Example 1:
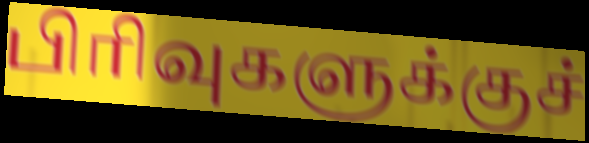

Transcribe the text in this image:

பிரிவுகளுக்குச்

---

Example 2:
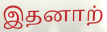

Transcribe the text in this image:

இதனாற்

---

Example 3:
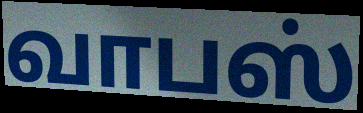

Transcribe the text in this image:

வாபஸ்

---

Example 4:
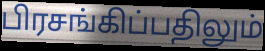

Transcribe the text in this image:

பிரசங்கிப்பதிலும்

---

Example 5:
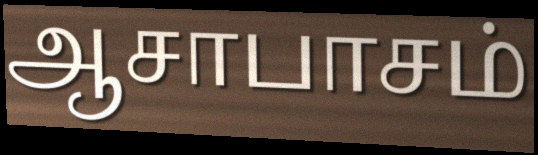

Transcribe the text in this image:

ஆசாபாசம்